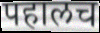
पहालच